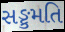
સઙ્કમતિ